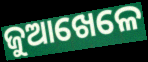
ଜୁଆଖେଳେ